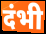
दंभी